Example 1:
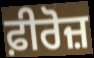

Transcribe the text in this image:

ਫ਼ੀਰੋਜ਼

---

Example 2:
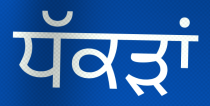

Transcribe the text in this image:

ਧੱਕੜਾਂ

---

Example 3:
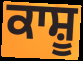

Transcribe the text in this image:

ਕਾਸ਼ੂ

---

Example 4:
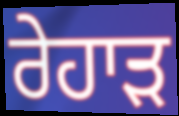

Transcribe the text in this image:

ਰੇਹਾੜ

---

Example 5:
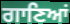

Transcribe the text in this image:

ਗਾਣਿਆਂ